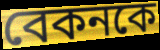
বেকনকে